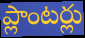
ప్లాంటర్లు